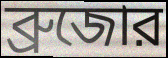
ব্রুজোর